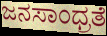
ಜನಸಾಂಧ್ರತೆ